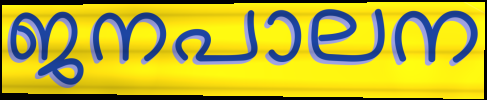
ജനപാലന